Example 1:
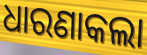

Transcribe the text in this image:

ଧାରଣାକଲା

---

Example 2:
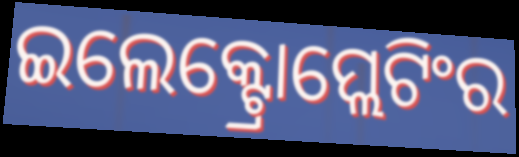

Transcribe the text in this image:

ଇଲେକ୍ଟ୍ରୋପ୍ଲେଟିଂର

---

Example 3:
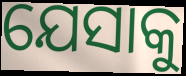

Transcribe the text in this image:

ଯେସାକୁ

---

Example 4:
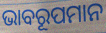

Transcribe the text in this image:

ଭାବରୂପମାନ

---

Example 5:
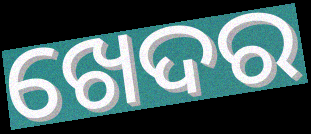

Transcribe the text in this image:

ଖେଦର